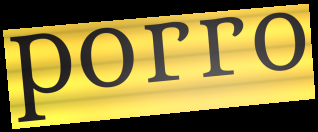
porro